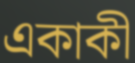
একাকী